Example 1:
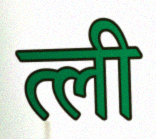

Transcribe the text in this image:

त्ली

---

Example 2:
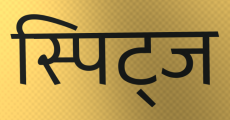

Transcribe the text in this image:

स्पिट्ज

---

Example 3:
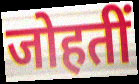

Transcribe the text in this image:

जोहतीं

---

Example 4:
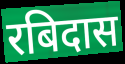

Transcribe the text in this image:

रबिदास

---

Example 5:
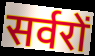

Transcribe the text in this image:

सर्वरों